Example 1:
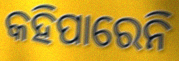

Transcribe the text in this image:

କହିପାରେନି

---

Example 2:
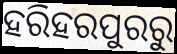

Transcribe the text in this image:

ହରିହରପୁରରୁ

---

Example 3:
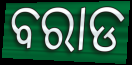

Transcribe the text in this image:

ବରାଡ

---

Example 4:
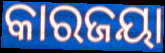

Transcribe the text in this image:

କାରଜୟା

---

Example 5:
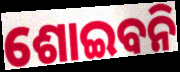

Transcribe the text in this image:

ଶୋଇବନି